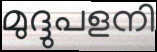
മുദ്ദുപളനി